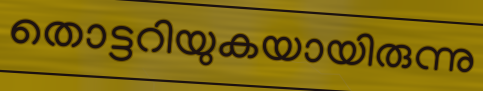
തൊട്ടറിയുകയായിരുന്നു